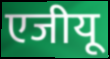
एजीयू